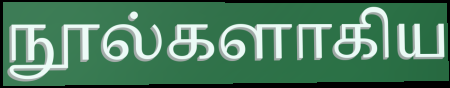
நூல்களாகிய